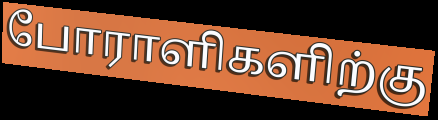
போராளிகளிற்கு